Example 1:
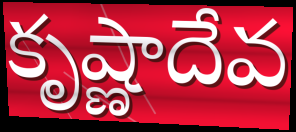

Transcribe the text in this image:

కృష్ణాదేవ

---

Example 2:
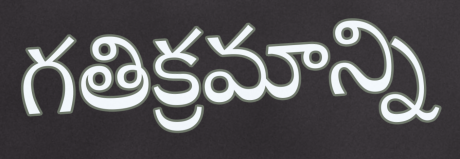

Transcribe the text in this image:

గతిక్రమాన్ని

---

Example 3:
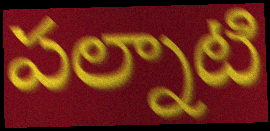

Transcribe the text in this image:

పల్నాటి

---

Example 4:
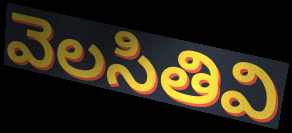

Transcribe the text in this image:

వెలసితివి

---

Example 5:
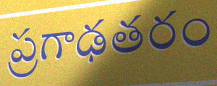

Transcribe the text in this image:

ప్రగాఢతరం